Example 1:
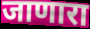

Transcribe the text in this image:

जाणारा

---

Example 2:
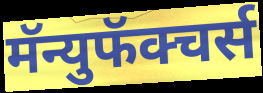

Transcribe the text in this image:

मॅन्युफॅक्चर्स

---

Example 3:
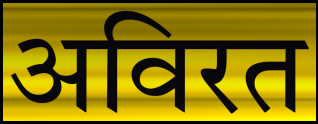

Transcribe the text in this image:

अविरत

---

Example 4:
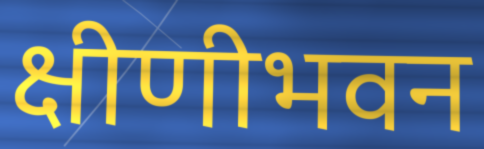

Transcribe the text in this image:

क्षीणीभवन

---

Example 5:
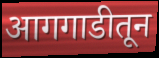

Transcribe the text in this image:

आगगाडीतून